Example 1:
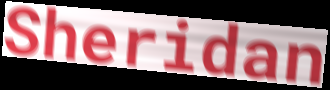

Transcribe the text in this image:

Sheridan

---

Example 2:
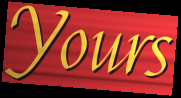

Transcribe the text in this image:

Yours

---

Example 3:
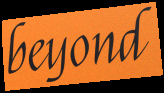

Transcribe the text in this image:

beyond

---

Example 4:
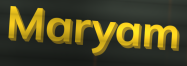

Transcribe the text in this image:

Maryam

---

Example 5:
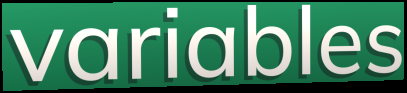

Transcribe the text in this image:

variables